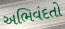
અભિવંદતો